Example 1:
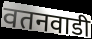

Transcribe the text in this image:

वतनवाडी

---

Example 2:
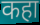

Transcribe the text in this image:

कहा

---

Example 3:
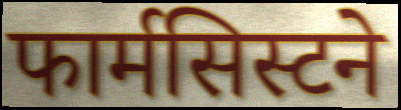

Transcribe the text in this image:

फार्मसिस्टने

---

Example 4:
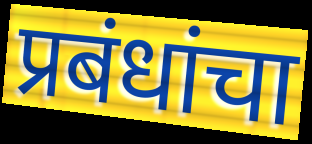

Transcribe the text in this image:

प्रबंधांचा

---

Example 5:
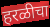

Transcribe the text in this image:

हरळीचा